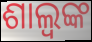
ଶାଲ୍ୱଙ୍କ